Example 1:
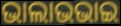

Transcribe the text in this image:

ଭାଲାଭଭାଇ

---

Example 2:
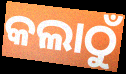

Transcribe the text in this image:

କଲାଠୁଁ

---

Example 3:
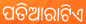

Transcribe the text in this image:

ପତିଆରାଟିଏ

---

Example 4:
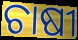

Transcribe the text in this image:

ଚାଷୀ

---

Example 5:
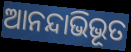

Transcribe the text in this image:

ଆନନ୍ଦାଭିଭୂତ